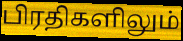
பிரதிகளிலும்